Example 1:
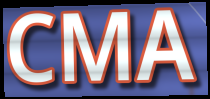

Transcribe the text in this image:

CMA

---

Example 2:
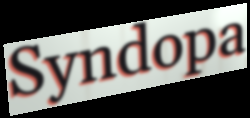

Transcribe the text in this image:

Syndopa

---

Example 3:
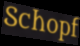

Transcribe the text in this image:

Schopf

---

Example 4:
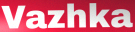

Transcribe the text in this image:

Vazhka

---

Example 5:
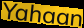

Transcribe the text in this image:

Yahaan